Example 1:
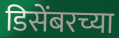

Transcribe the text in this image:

डिसेंबरच्या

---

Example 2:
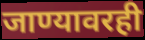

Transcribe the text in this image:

जाण्यावरही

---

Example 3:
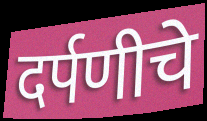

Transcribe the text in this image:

दर्पणीचे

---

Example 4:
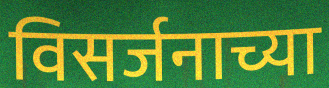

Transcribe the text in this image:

विसर्जनाच्या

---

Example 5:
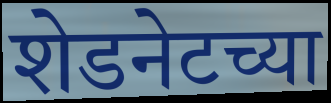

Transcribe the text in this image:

शेडनेटच्या